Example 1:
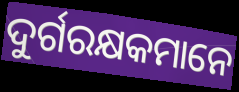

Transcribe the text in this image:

ଦୁର୍ଗରକ୍ଷକମାନେ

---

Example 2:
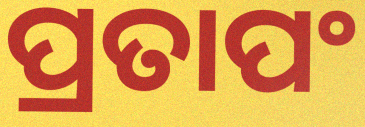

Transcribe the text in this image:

ପ୍ରତାପଂ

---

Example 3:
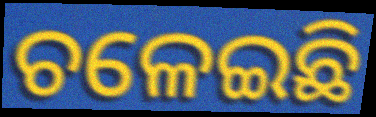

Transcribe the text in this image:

ଚଳେଇଛି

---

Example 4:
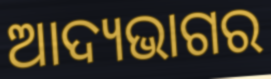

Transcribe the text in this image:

ଆଦ୍ୟଭାଗର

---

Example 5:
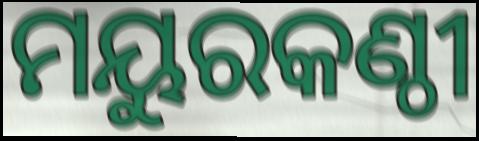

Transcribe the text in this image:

ମୟୁରକଣ୍ଠୀ